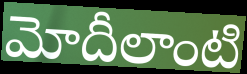
మోదీలాంటి